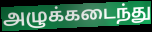
அழுக்கடைந்து